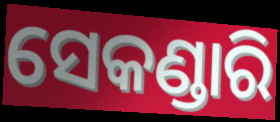
ସେକଣ୍ଡାରି